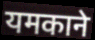
यमकाने